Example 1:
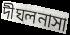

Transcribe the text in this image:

দীঘলনাসা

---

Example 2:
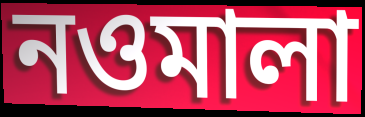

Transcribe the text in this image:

নওমালা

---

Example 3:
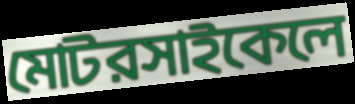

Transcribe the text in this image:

মোটরসাইকেলে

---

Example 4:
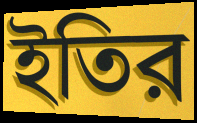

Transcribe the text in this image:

ইতির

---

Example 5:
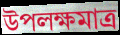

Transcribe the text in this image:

উপলক্ষমাত্র